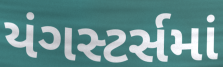
યંગસ્ટર્સમાં